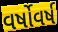
વર્ષોવર્ષ